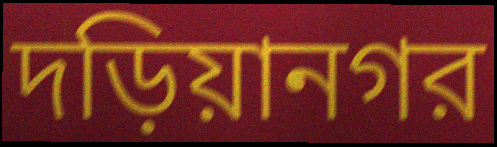
দড়িয়ানগর